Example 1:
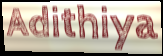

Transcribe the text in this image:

Adithiya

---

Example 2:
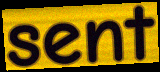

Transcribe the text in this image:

sent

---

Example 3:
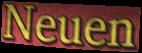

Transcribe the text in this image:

Neuen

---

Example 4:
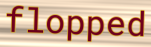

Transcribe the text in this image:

flopped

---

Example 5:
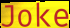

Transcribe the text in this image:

Joke